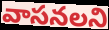
వాసనలని